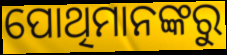
ପୋଥିମାନଙ୍କରୁ